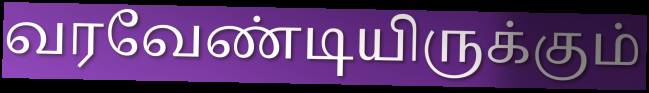
வரவேண்டியிருக்கும்